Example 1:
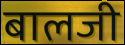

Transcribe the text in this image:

बालजी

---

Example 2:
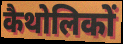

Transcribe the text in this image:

कैथोलिकों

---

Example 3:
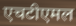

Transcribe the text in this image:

एचटीएमल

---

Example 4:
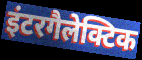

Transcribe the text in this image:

इंटरगैलेक्टिक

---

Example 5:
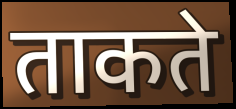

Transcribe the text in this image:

ताकते